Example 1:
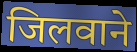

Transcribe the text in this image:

जिलवाने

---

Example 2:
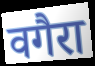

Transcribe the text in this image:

वगैरा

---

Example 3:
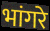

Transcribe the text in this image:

भांगरे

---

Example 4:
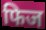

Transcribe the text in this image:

फिज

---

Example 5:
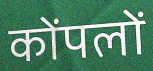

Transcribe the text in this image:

कोंपलों